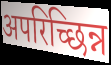
अपरिच्छिन्न